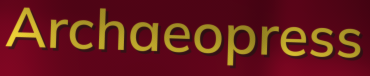
Archaeopress